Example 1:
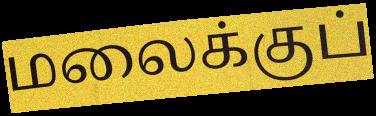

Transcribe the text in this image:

மலைக்குப்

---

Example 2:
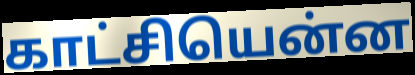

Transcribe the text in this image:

காட்சியென்ன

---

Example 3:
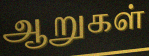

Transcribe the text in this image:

ஆறுகள்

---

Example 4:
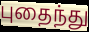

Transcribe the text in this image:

புதைந்து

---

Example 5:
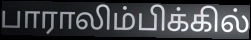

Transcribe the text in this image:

பாராலிம்பிக்கில்